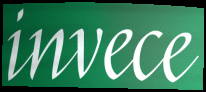
invece